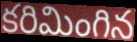
కరిమింగిన